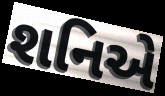
શનિએ